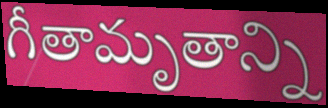
గీతామృతాన్ని